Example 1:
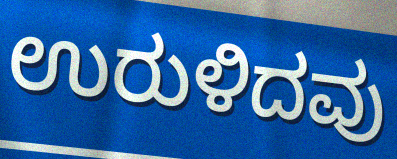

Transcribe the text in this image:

ಉರುಳಿದವು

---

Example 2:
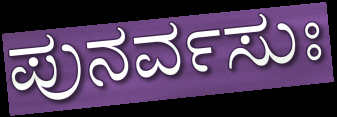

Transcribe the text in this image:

ಪುನರ್ವಸುಃ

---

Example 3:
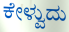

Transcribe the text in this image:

ಕೇಳ್ವುದು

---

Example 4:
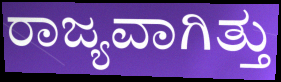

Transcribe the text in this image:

ರಾಜ್ಯವಾಗಿತ್ತು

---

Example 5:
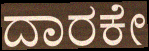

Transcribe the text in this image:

ದಾರಕೇ